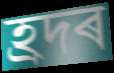
হ্ৰদৰ